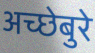
अच्छेबुरे